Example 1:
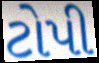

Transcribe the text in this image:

ટોપી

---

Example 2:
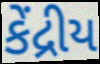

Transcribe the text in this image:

કેંદ્રીય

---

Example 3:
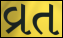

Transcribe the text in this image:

વ્રત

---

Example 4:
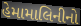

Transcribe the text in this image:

હેમામાલિનીનો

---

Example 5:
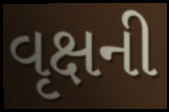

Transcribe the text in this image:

વૃક્ષની